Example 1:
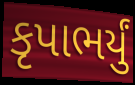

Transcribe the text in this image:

કૃપાભર્યું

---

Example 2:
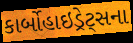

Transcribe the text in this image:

કાર્બોહાઇડ્રેટ્સના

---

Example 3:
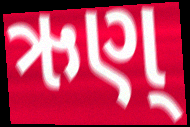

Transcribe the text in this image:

ઋણ્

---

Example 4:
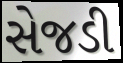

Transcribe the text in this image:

સેજડી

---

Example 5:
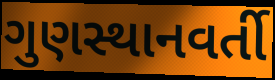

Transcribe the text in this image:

ગુણસ્થાનવર્તી